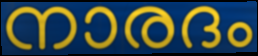
നാരദം